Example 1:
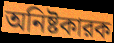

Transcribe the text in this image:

অনিষ্টকারক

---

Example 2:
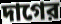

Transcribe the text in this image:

দাগের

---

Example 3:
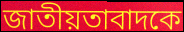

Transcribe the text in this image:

জাতীয়তাবাদকে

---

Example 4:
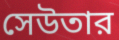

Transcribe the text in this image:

সেউতার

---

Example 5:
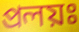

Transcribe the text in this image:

প্রলয়ঃ